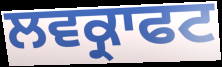
ਲਵਕ੍ਰਾਫਟ